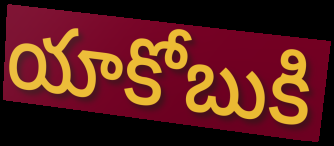
యాకోబుకి